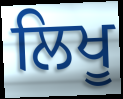
ਲਿਖੂ